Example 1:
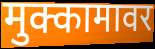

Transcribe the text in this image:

मुक्कामावर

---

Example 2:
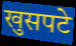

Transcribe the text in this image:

खुसपटे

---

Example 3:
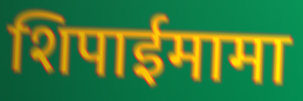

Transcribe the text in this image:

शिपाईमामा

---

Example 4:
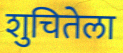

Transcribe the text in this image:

शुचितेला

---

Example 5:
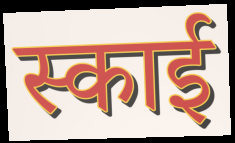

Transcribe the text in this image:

स्काई